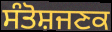
ਸੰਤੋਸ਼ਜਣਕ